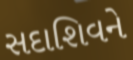
સદાશિવને